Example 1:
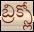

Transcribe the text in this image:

బ్రిక్స్లో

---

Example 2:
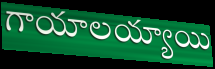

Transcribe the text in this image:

గాయాలయ్యాయి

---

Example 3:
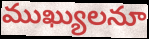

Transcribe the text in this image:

ముఖ్యులనూ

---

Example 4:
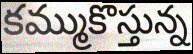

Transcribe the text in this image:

కమ్ముకొస్తున్న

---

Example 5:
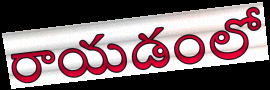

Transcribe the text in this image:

రాయడంలో